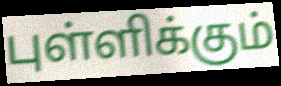
புள்ளிக்கும்